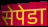
सेपेडा